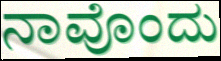
ನಾವೊಂದು